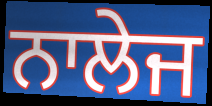
ਨਾਲੇਜ